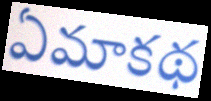
ఏమాకథ